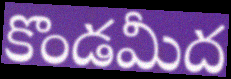
కొండమీద